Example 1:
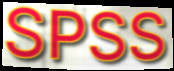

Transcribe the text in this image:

SPSS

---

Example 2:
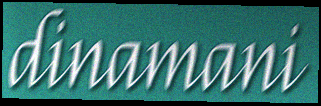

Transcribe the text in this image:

dinamani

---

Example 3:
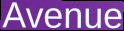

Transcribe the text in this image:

Avenue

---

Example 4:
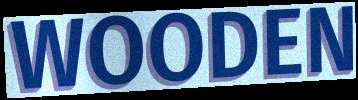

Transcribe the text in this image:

WOODEN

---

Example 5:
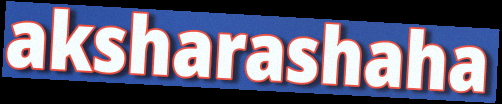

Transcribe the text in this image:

aksharashaha